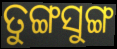
ତୁଙ୍ଗସୁଙ୍ଗ